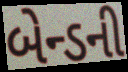
બેન્ડની